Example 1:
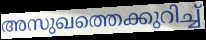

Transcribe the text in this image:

അസുഖത്തെക്കുറിച്ച്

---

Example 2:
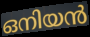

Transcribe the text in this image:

ഒനിയൻ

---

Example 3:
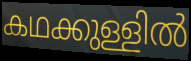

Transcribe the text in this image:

കഥക്കുള്ളിൽ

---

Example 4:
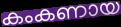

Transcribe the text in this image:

കംകണായ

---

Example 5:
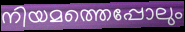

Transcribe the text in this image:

നിയമത്തെപ്പോലും